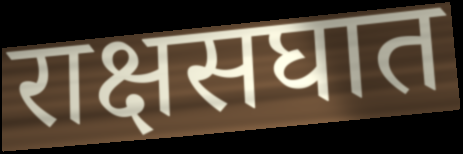
राक्षसघात